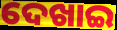
ଦେଖାଇ